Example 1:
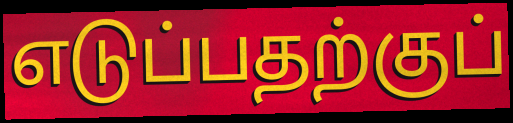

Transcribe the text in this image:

எடுப்பதற்குப்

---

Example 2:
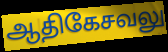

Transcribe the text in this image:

ஆதிகேசவலு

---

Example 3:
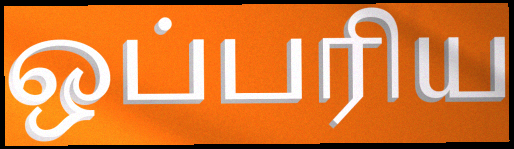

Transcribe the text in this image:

ஒப்பரிய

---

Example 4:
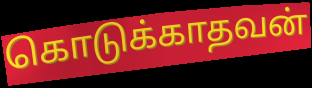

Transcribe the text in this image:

கொடுக்காதவன்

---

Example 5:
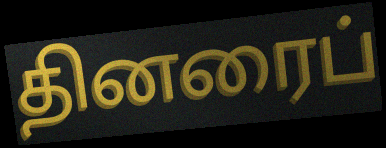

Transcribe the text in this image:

தினரைப்